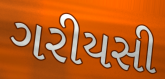
ગરીયસી